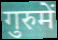
गुरुमें